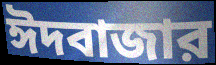
ঈদবাজার